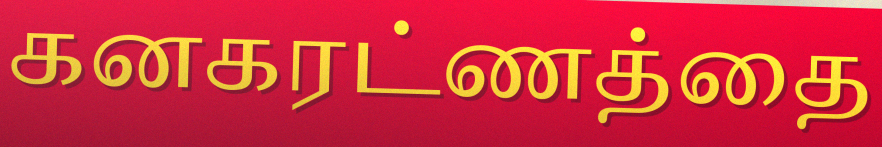
கனகரட்ணத்தை